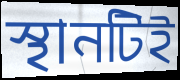
স্থানটিই